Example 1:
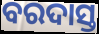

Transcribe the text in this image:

ବରଦାସ୍ତ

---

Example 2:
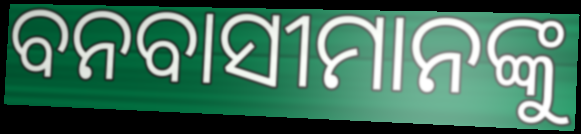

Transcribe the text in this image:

ବନବାସୀମାନଙ୍କୁ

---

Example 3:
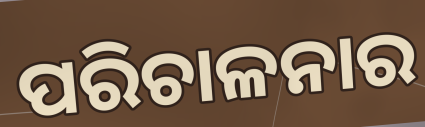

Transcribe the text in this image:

ପରିଚାଳନାର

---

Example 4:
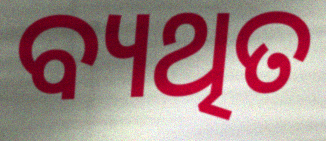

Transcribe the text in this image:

ବ୍ୟଥିତ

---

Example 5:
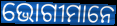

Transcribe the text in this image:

ଭୋଗୀମାନେ